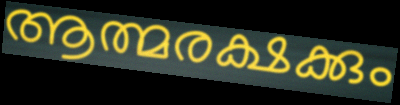
ആത്മരക്ഷക്കും